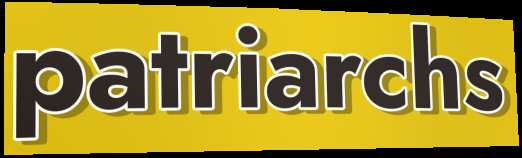
patriarchs